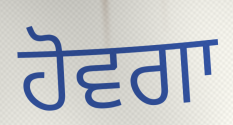
ਹੋਵਗਾ